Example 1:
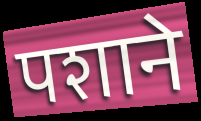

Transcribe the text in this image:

पशाने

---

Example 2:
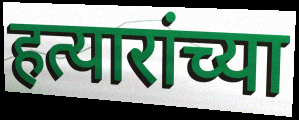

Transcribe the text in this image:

हत्यारांच्या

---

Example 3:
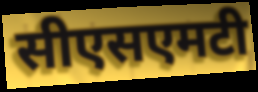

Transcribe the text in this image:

सीएसएमटी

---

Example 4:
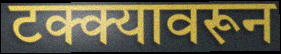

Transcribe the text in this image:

टक्क्यावरून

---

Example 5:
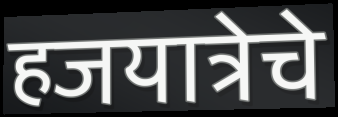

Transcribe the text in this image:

हजयात्रेचे